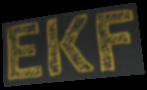
EKF